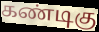
கண்டிகு